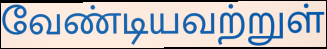
வேண்டியவற்றுள்